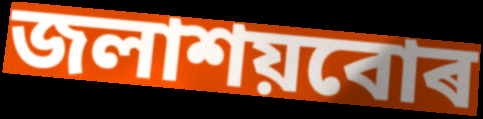
জলাশয়বোৰ